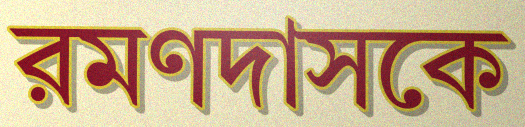
রমণদাসকে